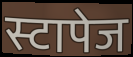
स्टापेज